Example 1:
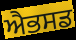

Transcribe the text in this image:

ਐਭਸਡ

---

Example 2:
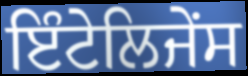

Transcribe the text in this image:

ਇੰਟੇਲਿਜੇਂਸ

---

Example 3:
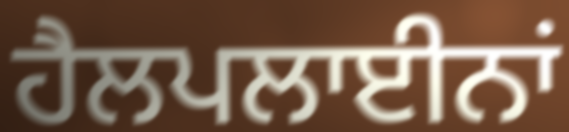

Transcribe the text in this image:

ਹੈਲਪਲਾਈਨਾਂ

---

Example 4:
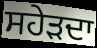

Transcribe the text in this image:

ਸਹੇੜਦਾ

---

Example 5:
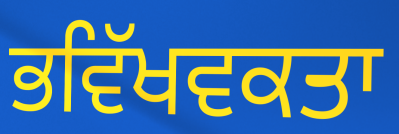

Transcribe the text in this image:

ਭਵਿੱਖਵਕਤਾ